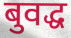
बुवद्ध